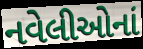
નવેલીઓનાં